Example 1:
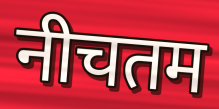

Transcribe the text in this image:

नीचतम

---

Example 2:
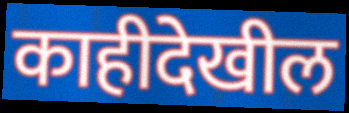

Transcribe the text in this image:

काहीदेखील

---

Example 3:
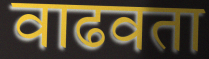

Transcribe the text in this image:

वाढवता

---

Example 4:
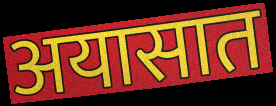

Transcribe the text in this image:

अयासात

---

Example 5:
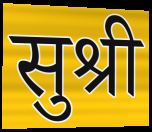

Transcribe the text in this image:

सुश्री